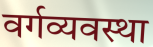
वर्गव्यवस्था